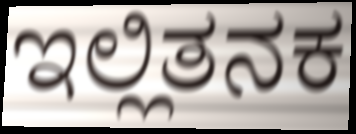
ಇಲ್ಲಿತನಕ